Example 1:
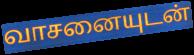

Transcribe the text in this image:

வாசனையுடன்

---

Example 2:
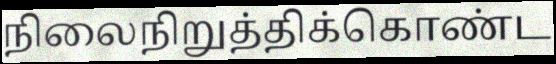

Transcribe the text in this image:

நிலைநிறுத்திக்கொண்ட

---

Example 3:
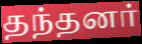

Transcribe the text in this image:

தந்தனர்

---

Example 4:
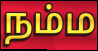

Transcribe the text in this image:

நம்ம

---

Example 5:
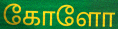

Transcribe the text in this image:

கோளோ